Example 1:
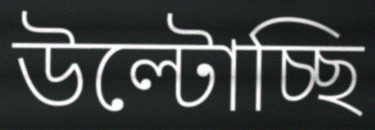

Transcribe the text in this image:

উল্টোচ্ছি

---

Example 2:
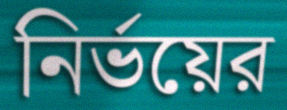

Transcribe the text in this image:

নির্ভয়ের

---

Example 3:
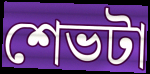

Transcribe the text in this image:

শেভটা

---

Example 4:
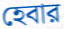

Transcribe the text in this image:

হেবার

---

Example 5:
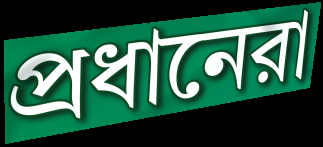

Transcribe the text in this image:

প্রধানেরা